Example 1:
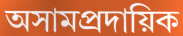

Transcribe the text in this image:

অসামপ্রদায়িক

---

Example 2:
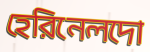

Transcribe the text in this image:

হেরিনেলদো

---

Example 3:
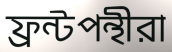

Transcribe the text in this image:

ফ্রন্টপন্থীরা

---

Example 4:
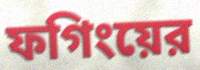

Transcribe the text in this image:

ফগিংয়ের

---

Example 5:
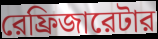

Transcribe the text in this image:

রেফ্রিজারেটার